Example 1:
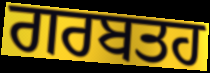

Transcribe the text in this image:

ਗਰਬਤਹ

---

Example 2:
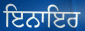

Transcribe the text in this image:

ਇਨਾਇਰ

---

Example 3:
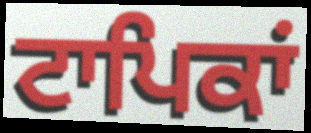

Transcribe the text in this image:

ਟਾਪਿਕਾਂ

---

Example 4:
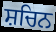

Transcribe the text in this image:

ਸ਼ਚਿਨ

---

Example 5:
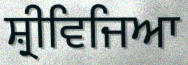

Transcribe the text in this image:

ਸ਼੍ਰੀਵਿਜਿਆ